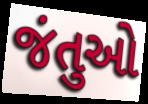
જંતુઓ